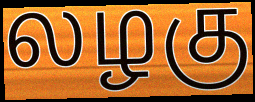
லழகு